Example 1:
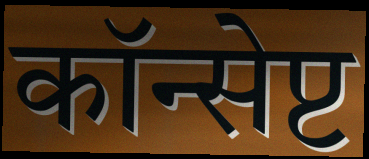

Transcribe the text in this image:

कॉन्सेप्ट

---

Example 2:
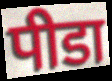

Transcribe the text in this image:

पीडा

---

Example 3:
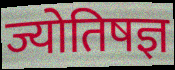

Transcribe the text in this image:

ज्योतिषज्ञ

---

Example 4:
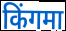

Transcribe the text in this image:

किंगमा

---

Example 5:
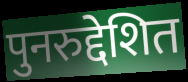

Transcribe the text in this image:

पुनरुद्देशित